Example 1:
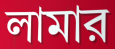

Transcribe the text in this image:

লামার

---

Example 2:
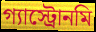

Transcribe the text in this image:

গ্যাস্ট্রোনমি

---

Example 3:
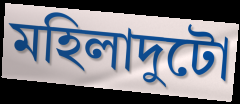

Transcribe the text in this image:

মহিলাদুটো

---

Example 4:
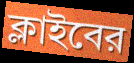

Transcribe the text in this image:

ক্লাইবের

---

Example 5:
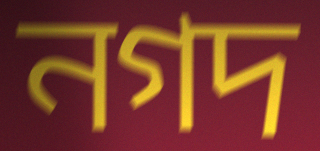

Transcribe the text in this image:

নগদ